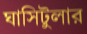
ঘাসিটুলার